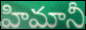
హిమానీ